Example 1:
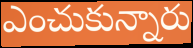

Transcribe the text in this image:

ఎంచుకున్నారు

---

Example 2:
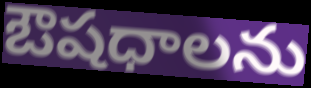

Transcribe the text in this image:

ఔషధాలను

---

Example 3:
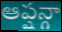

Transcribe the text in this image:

ఆప్షన్గా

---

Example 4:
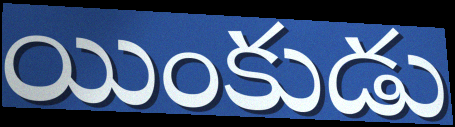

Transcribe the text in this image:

యింకుడు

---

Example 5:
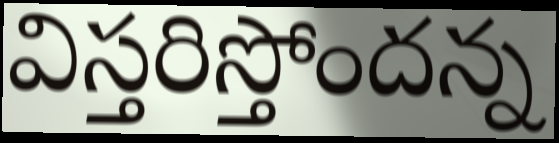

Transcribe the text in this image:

విస్తరిస్తోందన్న